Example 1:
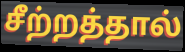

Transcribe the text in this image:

சீற்றத்தால்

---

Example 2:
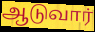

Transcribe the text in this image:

ஆடுவார்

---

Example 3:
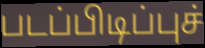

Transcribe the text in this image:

படப்பிடிப்புச்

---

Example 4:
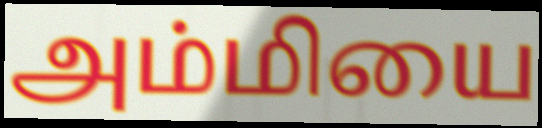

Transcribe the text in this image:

அம்மியை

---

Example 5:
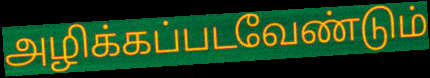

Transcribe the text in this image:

அழிக்கப்படவேண்டும்